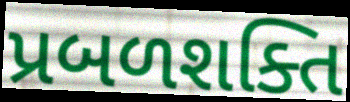
પ્રબળશક્તિ